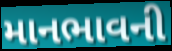
માનભાવની